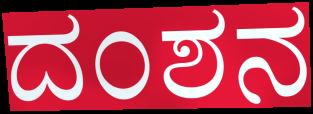
ದಂಶನ